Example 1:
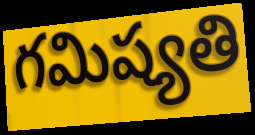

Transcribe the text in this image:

గమిష్యతి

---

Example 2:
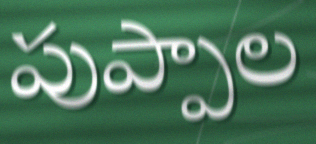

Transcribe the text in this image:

పుప్పాల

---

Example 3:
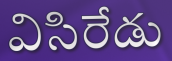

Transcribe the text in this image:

విసిరేడు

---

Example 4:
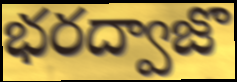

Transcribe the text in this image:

భరద్వాజొ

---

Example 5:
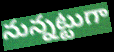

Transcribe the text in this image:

నున్నట్టుగా